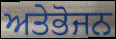
ਅਤੇਭੋਜਨ